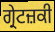
ਗ੍ਰੇਟਜ਼ਕੀ